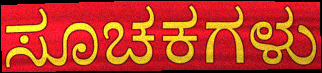
ಸೂಚಕಗಳು